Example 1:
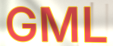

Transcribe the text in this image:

GML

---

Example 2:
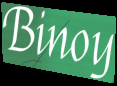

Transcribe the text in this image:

Binoy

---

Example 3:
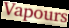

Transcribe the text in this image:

Vapours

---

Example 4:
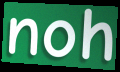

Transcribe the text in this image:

noh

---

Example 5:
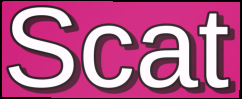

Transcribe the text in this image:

Scat